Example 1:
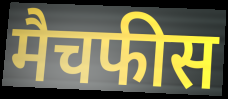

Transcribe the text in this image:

मैचफीस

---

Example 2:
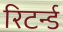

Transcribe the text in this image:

रिटर्न्ड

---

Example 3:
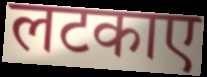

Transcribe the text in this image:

लटकाए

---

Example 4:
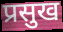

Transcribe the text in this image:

प्रसुख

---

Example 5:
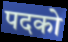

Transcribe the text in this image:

पदको